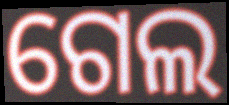
ଗେଲ